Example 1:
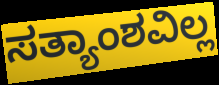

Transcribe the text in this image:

ಸತ್ಯಾಂಶವಿಲ್ಲ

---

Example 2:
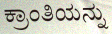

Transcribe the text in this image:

ಕ್ರಾಂತಿಯನ್ನು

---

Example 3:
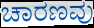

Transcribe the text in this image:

ಚಾರಣವು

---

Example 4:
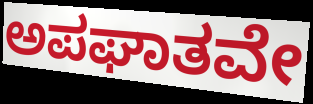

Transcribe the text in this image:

ಅಪಘಾತವೇ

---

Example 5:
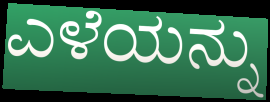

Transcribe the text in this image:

ಎಳೆಯನ್ನು